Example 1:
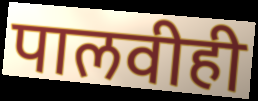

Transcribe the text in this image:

पालवीही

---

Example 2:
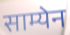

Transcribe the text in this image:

साम्येन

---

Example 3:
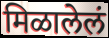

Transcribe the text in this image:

मिळालेलं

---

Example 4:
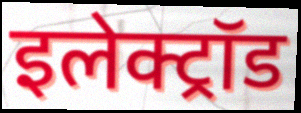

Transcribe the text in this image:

इलेक्ट्रॉड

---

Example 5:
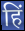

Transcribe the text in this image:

हिं